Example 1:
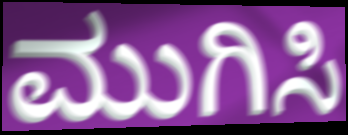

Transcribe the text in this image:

ಮುಗಿಸಿ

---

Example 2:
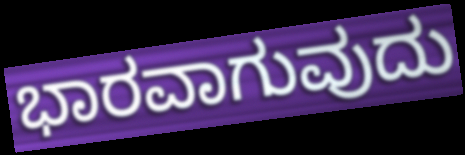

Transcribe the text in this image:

ಭಾರವಾಗುವುದು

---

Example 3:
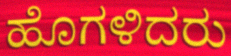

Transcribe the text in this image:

ಹೊಗಳಿದರು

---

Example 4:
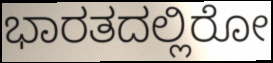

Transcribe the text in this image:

ಭಾರತದಲ್ಲಿರೋ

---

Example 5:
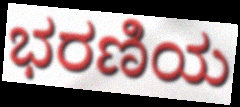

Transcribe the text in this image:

ಭರಣಿಯ